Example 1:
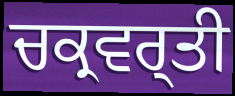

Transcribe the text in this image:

ਚਕ੍ਰਵਰ੍ਤੀ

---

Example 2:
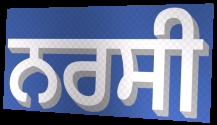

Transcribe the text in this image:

ਨਰਸੀ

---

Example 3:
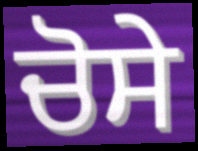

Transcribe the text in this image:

ਚੋਸੇ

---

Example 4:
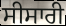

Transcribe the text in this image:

ਸੀਸਾਰੀ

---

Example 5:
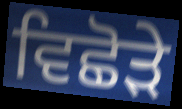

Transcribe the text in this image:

ਵਿਛੋੜੇ